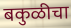
बकुळीचा